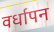
वर्धापन